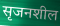
सृजनशील